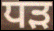
ਧੜ